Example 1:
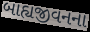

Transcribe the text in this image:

બાહ્યજીવનના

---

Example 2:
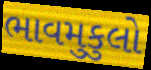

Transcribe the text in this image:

ભાવમુકુલો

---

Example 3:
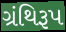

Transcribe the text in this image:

ગ્રંથિરૂપ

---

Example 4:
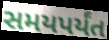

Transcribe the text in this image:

સમયપર્યંત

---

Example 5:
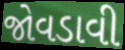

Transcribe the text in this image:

જોવડાવી